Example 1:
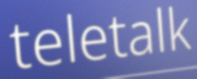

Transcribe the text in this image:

teletalk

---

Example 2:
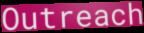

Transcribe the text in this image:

Outreach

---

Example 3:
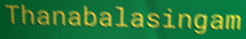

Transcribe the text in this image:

Thanabalasingam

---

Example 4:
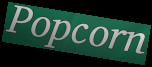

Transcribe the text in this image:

Popcorn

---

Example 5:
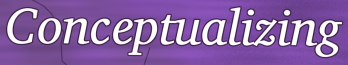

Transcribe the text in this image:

Conceptualizing